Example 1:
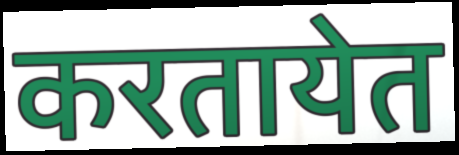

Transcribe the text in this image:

करतायेत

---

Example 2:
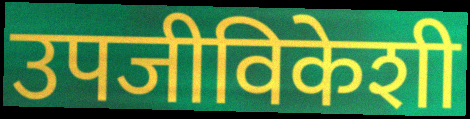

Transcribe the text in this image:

उपजीविकेशी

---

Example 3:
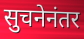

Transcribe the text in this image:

सुचनेनंतर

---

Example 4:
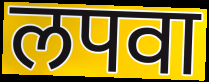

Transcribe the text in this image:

लपवा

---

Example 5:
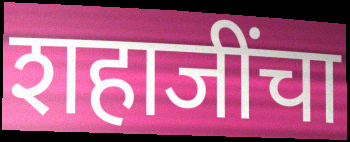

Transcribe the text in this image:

शहाजींचा